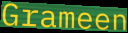
Grameen